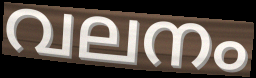
വലനം